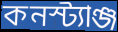
কনস্ট্যাঞ্জ